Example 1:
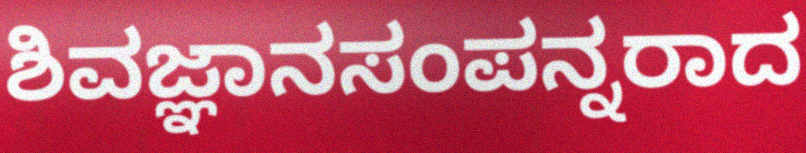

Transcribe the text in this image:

ಶಿವಜ್ಞಾನಸಂಪನ್ನರಾದ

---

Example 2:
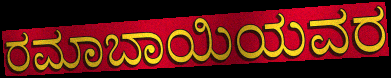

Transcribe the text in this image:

ರಮಾಬಾಯಿಯವರ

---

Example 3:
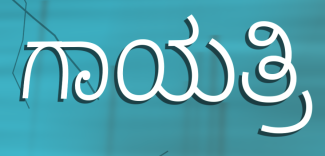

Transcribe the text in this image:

ಗಾಯತ್ರಿ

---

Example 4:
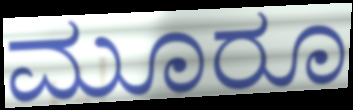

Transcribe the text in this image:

ಮೂರೂ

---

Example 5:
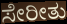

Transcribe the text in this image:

ಸೇರೀತು